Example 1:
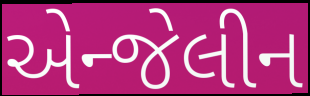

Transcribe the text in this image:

એન્જેલીન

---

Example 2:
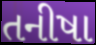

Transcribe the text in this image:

તનીષા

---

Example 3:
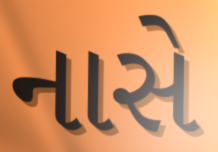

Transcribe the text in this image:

નાસે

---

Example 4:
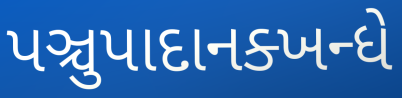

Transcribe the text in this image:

પઞ્ચુપાદાનક્ખન્ધે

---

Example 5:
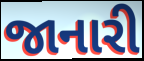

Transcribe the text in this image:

જાનારી